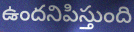
ఉందనిపిస్తుంది